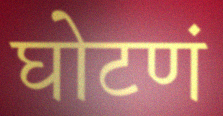
घोटणं